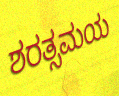
ಶರತ್ಸಮಯ